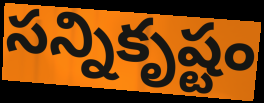
సన్నికృష్టం